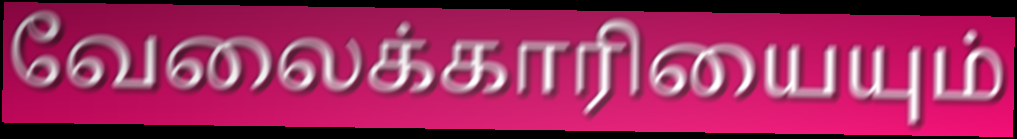
வேலைக்காரியையும்